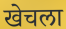
खेचला